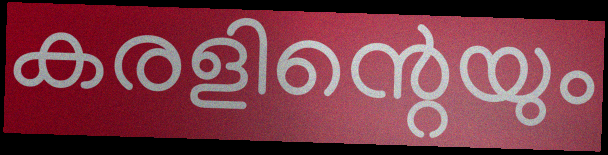
കരളിന്റെയും